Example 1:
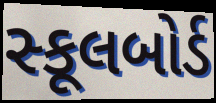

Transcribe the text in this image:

સ્કૂલબોર્ડ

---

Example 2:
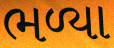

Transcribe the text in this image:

ભળ્યા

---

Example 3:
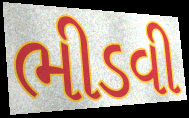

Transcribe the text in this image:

ભીડવી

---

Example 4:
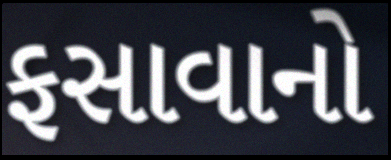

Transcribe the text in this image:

ફસાવાનો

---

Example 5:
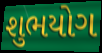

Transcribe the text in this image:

શુભયોગ